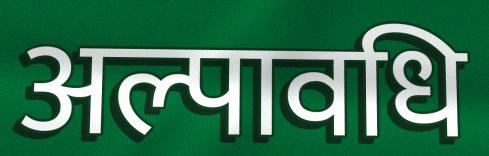
अल्पावधि